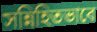
সন্নিহিতভাবে